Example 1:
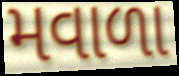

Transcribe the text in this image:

મવાળા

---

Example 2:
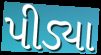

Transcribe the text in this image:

પીડ્યા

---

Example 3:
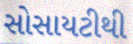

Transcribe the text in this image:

સોસાયટીથી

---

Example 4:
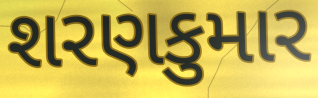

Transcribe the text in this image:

શરણકુમાર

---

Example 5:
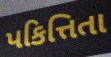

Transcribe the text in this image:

પકિત્તિતા